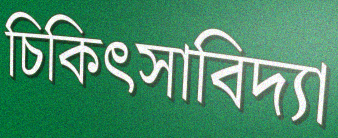
চিকিৎসাবিদ্যা